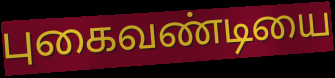
புகைவண்டியை